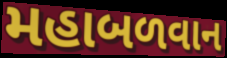
મહાબળવાન